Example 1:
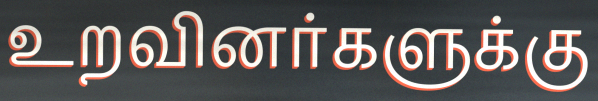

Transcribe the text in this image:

உறவினர்களுக்கு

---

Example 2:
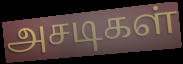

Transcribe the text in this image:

அசடிகள்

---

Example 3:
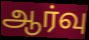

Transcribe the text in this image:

ஆர்வு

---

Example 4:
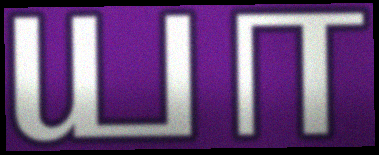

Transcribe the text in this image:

யா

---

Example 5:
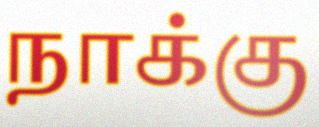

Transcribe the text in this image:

நாக்கு